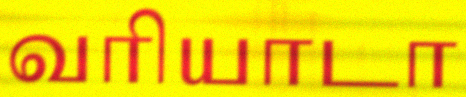
வரியாடா